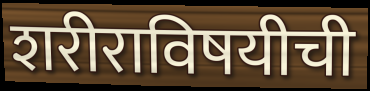
शरीराविषयीची